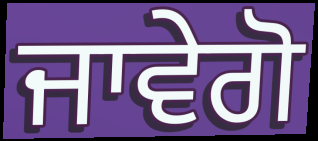
ਜਾਵੇਗੋ